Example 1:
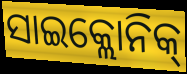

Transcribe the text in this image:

ସାଇକ୍ଲୋନିକ୍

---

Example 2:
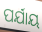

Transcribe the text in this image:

ପର୍ଯାୟ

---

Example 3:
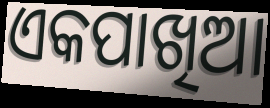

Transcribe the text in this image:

ଏକପାଖିଆ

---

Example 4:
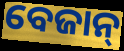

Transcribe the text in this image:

ବେଜାନ୍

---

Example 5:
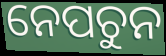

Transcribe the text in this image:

ନେପଚୁନ